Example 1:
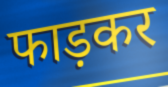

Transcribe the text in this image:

फाड़कर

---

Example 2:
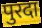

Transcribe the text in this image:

पुरदा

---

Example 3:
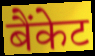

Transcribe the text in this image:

बैंकेट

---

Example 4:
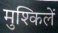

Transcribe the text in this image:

मुश्किलें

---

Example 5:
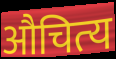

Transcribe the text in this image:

औचित्‍य